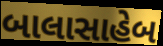
બાલાસાહેબ